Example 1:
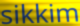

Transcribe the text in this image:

sikkim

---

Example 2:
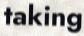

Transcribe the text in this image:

taking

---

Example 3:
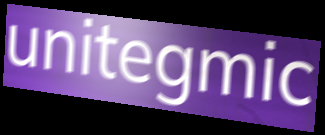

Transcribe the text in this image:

unitegmic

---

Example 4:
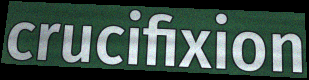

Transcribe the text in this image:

crucifixion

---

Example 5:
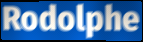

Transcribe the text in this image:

Rodolphe